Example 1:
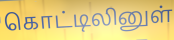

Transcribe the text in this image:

கொட்டிலினுள்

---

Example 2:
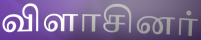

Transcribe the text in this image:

விளாசினர்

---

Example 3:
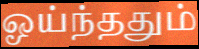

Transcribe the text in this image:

ஓய்ந்ததும்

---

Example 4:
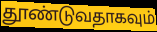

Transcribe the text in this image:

தூண்டுவதாகவும்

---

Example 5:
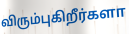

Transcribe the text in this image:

விரும்புகிறீர்களா